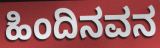
ಹಿಂದಿನವನ